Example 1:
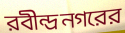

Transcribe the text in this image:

রবীন্দ্রনগরের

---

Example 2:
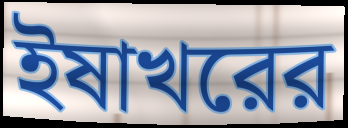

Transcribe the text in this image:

ইষাখরের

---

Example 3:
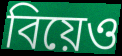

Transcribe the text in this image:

বিয়েও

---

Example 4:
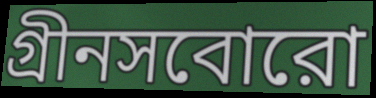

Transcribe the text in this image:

গ্রীনসবোরো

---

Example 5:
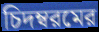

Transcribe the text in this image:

চিদম্বরমের